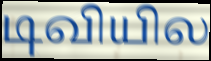
டிவியில